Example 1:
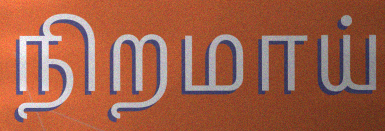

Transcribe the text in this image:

நிறமாய்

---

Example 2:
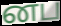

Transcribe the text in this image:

னப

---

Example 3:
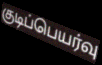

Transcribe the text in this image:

குடிப்பெயர்வு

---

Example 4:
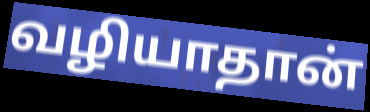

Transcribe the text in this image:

வழியாதான்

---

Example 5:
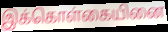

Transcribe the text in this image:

இக்கொள்கையினை